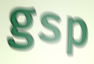
gsp